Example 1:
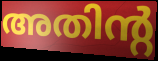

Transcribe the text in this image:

അതിന്റ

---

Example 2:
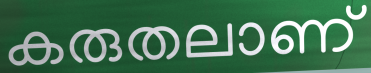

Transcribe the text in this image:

കരുതലാണ്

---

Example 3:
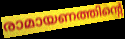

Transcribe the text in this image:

രാമായണത്തിന്റെ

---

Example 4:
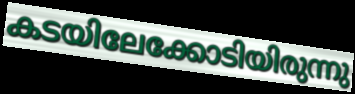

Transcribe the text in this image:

കടയിലേക്കോടിയിരുന്നു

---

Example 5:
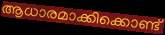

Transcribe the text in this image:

ആധാരമാക്കിക്കൊണ്ട്